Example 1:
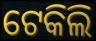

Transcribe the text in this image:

ଟେକିଲି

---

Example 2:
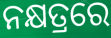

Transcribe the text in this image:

ନକ୍ଷତ୍ରରେ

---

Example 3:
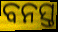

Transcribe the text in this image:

ବନସ୍ତ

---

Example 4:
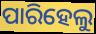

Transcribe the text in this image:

ପାରିହେଲୁ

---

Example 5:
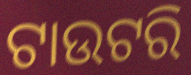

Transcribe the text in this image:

ଟାଉଟରି